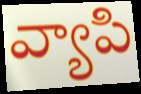
వ్యాపి